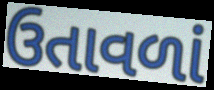
ઉતાવળાં